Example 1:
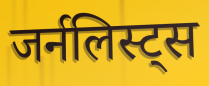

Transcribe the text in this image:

जर्नलिस्ट्स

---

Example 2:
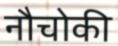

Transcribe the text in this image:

नौचोकी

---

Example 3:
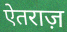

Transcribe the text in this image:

ऐतराज़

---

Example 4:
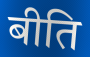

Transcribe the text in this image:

बीति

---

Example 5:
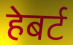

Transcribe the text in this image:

हेबर्ट